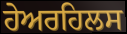
ਹੇਅਰਹਿਲਸ